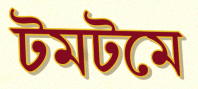
টমটমে